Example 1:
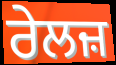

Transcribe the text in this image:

ਰੇਲਜ਼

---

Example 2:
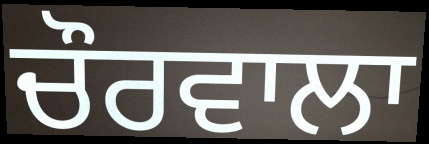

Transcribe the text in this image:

ਚੌਰਵਾਲਾ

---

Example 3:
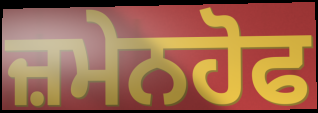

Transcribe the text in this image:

ਜ਼ਮੇਨਹੋਫ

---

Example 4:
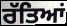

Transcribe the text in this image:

ਰੱਤਿਆਂ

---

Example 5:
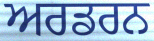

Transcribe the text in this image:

ਅਰਡਰਨ